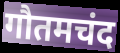
गौतमचंद